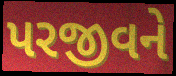
પરજીવને